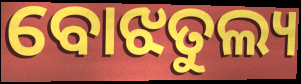
ବୋଝତୁଲ୍ୟ